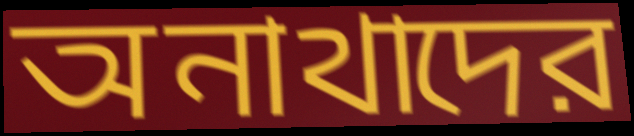
অনাথাদের